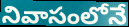
నివాసంలోనే